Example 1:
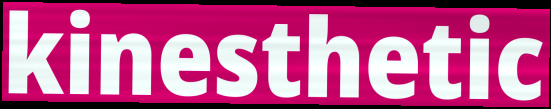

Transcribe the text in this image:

kinesthetic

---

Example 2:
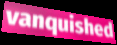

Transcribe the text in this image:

vanquished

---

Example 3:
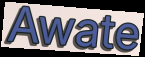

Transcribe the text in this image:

Awate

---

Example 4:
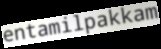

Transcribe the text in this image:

entamilpakkam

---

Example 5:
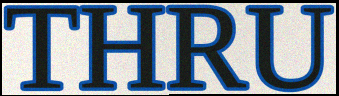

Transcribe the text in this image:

THRU